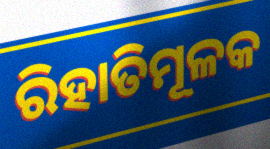
ରିହାତିମୂଳକ